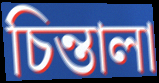
চিন্তালা